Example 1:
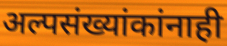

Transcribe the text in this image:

अल्पसंख्यांकांनाही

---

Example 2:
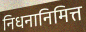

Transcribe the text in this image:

निधनानिमित्त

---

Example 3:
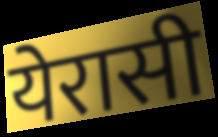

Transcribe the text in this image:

येरासी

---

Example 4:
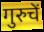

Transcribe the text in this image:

गुरुचें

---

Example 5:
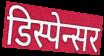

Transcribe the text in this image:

डिस्पेन्सर